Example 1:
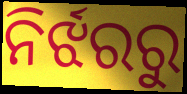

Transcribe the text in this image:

ନିର୍ଝରରୁ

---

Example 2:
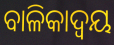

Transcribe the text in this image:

ବାଳିକାଦ୍ୱୟ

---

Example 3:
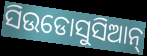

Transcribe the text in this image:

ସିଉଡୋସୁସିଆନ୍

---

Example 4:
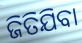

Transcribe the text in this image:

ଜିତିଯିବା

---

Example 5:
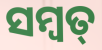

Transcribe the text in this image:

ସମ୍ବତ୍